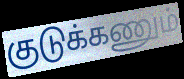
குடுக்கணும்